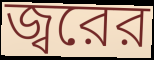
জ্বরের